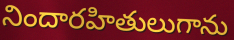
నిందారహితులుగాను